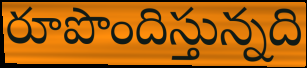
రూపొందిస్తున్నది